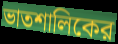
ভাতশালিকের